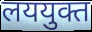
लययुक्त